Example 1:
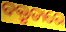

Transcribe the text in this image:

ବକ୍ତୃତାରେ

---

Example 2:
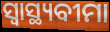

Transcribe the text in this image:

ସ୍ଵାସ୍ଥ୍ୟବୀମା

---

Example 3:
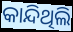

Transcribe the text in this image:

କାନ୍ଦିଥିଲି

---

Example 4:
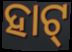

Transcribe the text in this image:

ହାଟ୍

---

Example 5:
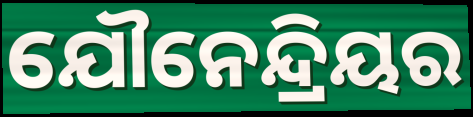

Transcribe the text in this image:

ଯୌନେନ୍ଦ୍ରିୟର